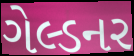
ગેલ્ડનર